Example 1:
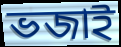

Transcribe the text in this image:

ভজাই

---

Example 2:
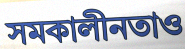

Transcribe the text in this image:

সমকালীনতাও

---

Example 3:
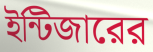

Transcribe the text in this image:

ইন্টিজারের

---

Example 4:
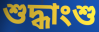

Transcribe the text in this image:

শুদ্ধাংশু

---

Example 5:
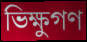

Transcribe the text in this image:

ভিক্ষুগণ